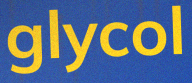
glycol